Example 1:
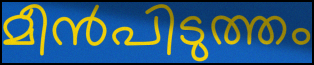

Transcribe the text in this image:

മീൻപിടുത്തം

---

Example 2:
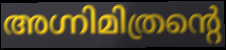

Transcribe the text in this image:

അഗ്നിമിത്രന്റെ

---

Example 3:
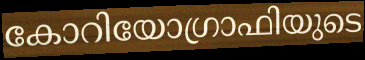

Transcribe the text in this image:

കോറിയോഗ്രാഫിയുടെ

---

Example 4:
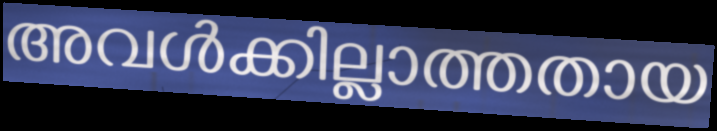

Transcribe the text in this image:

അവൾക്കില്ലാത്തതായ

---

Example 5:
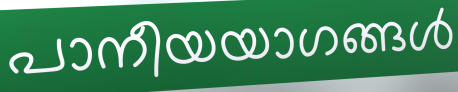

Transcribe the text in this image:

പാനീയയാഗങ്ങൾ